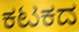
ಕಟಕದ